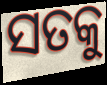
ସତକୁ